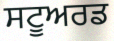
ਸਟੂਅਰਡ